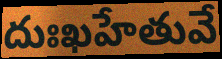
దుఃఖహేతువే